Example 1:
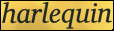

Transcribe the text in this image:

harlequin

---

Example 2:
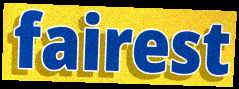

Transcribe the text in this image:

fairest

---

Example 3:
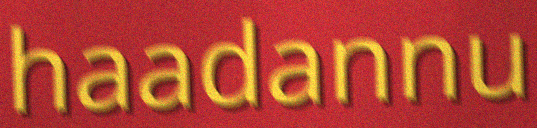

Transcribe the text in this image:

haadannu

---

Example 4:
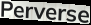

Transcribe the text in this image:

Perverse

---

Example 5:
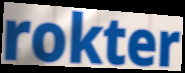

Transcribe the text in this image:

rokter